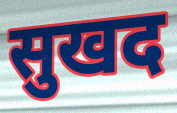
सुखद